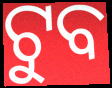
ଟୁବ